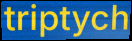
triptych